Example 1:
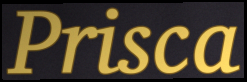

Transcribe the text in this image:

Prisca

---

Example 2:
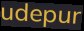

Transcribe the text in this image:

udepur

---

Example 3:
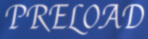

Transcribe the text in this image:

PRELOAD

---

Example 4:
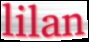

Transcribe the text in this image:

lilan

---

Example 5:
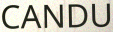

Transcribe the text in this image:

CANDU